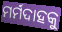
ମର୍ମଦାହକୁ